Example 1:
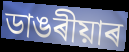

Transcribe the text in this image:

ডাঙৰীয়াৰ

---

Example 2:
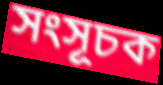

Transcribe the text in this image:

সংসূচক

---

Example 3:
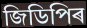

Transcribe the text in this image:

জিডিপিৰ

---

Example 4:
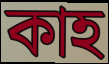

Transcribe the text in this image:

কাহ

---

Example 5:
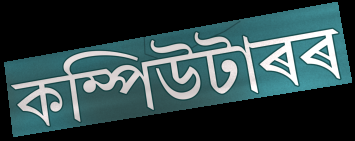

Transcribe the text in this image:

কম্পিউটাৰৰ